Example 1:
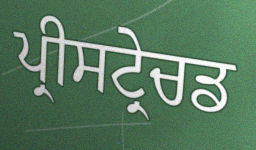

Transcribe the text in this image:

ਪ੍ਰੀਸਟ੍ਰੇਚਡ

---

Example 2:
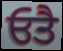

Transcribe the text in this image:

ਓਤੈ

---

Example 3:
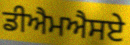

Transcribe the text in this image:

ਡੀਐਮਐਸਏ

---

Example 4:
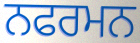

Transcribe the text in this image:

ਨਫਰਮਨ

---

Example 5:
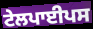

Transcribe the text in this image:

ਟੇਲਪਾਈਪਸ